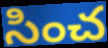
సించ